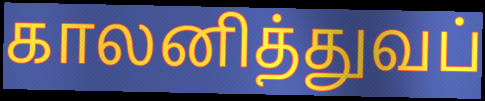
காலனித்துவப்